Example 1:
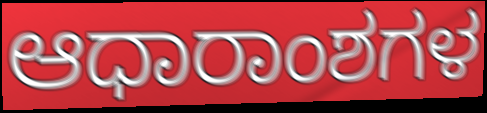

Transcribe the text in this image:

ಆಧಾರಾಂಶಗಳ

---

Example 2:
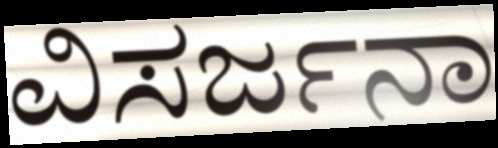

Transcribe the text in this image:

ವಿಸರ್ಜನಾ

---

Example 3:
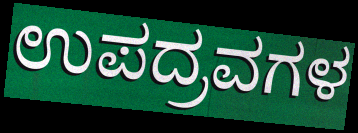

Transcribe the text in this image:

ಉಪದ್ರವಗಳ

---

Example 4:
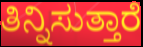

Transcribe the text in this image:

ತಿನ್ನಿಸುತ್ತಾರೆ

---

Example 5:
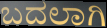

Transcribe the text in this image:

ಬದಲಾಗಿ